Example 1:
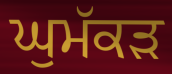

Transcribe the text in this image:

ਘੁਮੱਕਡ਼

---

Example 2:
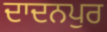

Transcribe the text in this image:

ਦਾਦਨਪੁਰ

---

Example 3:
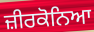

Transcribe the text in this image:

ਜ਼ੀਰਕੋਨਿਆ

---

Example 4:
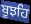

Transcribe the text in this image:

ਬੂਝਹਿ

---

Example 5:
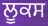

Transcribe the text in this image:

ਲੂਕਸ